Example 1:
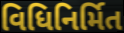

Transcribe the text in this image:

વિધિનિર્મિત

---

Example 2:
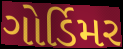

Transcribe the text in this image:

ગોર્ડિમર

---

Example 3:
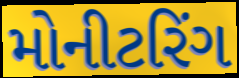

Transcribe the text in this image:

મોનીટરિંગ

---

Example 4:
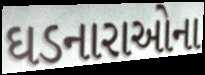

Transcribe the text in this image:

ઘડનારાઓના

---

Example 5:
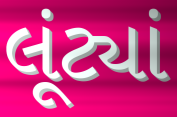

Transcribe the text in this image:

લૂંટ્યાં